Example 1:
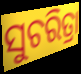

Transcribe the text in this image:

ସୁଚରିତ୍ରା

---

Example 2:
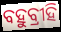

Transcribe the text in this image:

ବହୁବ୍ରୀହି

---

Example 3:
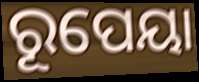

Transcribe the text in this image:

ରୂପେୟା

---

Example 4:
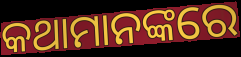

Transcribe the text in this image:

କଥାମାନଙ୍କରେ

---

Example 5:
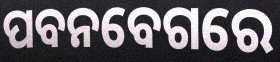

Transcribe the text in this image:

ପବନବେଗରେ